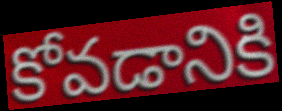
కోవడానికి